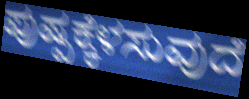
ಪುಷ್ಪಕ್ಕೆಳಸುವುದೆ